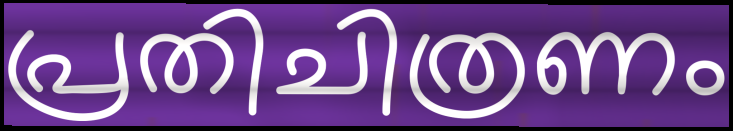
പ്രതിചിത്രണം